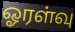
ஓரள்வு